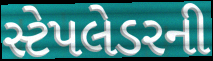
સ્ટેપલેડરની